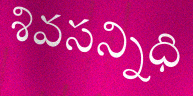
శివసన్నిధి